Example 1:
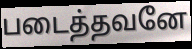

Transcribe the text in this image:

படைத்தவனே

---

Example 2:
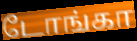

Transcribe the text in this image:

டோங்கா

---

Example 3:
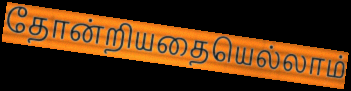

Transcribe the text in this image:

தோன்றியதையெல்லாம்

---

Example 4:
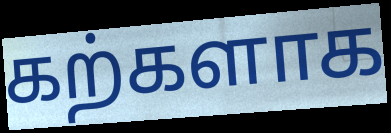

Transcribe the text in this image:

கற்களாக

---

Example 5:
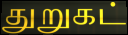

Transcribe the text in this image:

துறுகட்